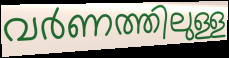
വർണത്തിലുള്ള